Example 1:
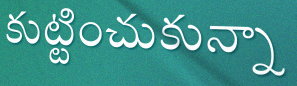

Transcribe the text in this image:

కుట్టించుకున్నా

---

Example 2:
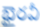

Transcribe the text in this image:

భైరవీ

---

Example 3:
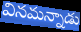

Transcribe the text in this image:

వినమన్నాడు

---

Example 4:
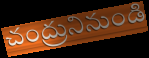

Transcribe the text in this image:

చంద్రునినుండి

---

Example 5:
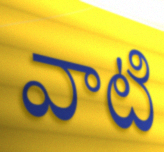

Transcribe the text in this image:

వాటి